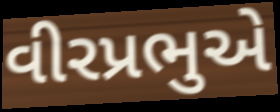
વીરપ્રભુએ